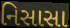
નિસાસા